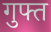
गुफ्त